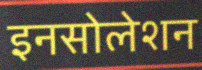
इनसोलेशन